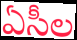
ఏసీల